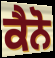
ਕੈਨੋ